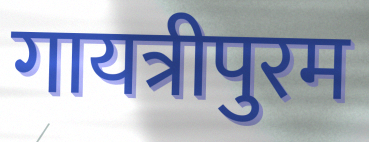
गायत्रीपुरम